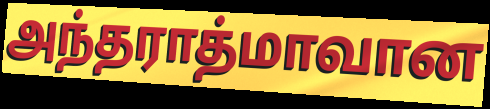
அந்தராத்மாவான